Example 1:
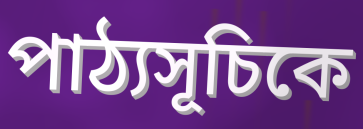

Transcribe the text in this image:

পাঠ্যসূচিকে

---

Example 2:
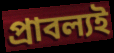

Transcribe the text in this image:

প্রাবল্যই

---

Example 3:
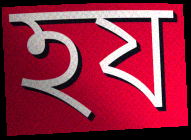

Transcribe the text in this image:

হয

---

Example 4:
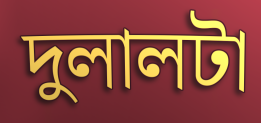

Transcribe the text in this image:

দুলালটা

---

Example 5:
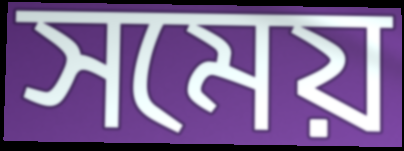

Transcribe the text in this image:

সমেয়